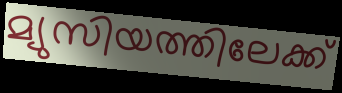
മ്യുസിയത്തിലേക്ക്